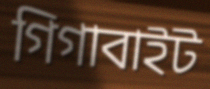
গিগাবাইট